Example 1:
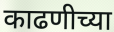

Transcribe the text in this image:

काढणीच्या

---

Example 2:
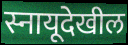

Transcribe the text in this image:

स्नायूदेखील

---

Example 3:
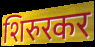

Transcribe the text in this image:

शिरुरकर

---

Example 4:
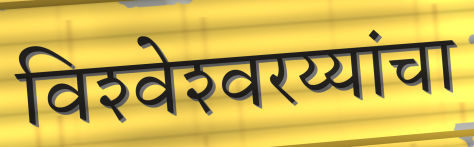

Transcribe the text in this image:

विश्वेश्वरय्यांचा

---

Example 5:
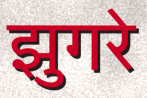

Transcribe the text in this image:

झुगरे